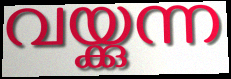
വയ്ക്കുന്ന